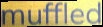
muffled